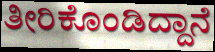
ತೀರಿಕೊಂಡಿದ್ದಾನೆ